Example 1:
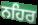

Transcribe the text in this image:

ਨਹਿਰ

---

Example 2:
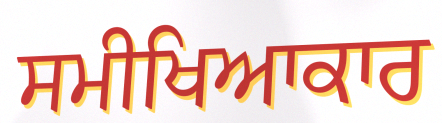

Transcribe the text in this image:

ਸਮੀਖਿਆਕਾਰ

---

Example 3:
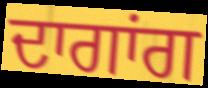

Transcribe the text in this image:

ਦਾਗਾਂਗ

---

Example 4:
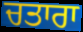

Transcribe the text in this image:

ਚਤਾਰਾ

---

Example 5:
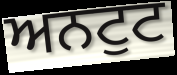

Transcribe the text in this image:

ਅਨਟੁਟ